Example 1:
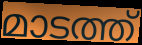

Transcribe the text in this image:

മാടത്ത്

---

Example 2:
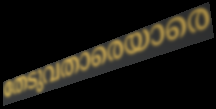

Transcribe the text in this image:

തേടുവതാരെയാരെ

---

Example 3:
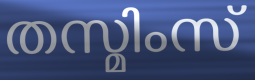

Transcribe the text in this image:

തസ്മിംസ്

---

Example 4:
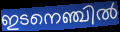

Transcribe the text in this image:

ഇടനെഞ്ചിൽ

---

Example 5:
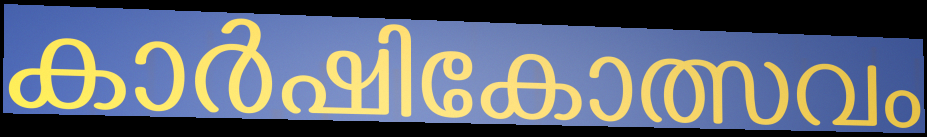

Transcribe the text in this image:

കാർഷികോത്സവം